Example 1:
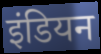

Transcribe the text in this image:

इंडियन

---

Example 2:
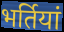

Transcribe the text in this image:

भर्तियां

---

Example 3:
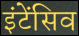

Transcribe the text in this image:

इंटेंसिव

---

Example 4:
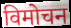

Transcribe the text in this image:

विमोचन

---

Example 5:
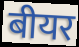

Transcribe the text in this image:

बीयर